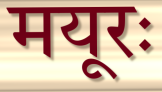
मयूरः